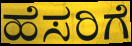
ಹೆಸರಿಗೆ